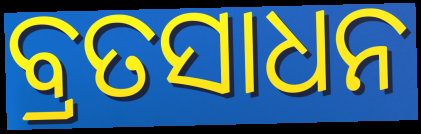
ବ୍ରତସାଧନ